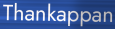
Thankappan